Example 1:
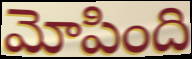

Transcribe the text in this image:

మోపింది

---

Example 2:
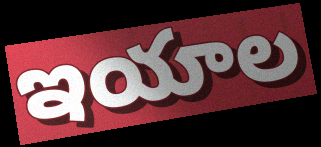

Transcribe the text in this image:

ఇయాల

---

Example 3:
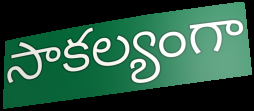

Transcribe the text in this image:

సాకల్యంగా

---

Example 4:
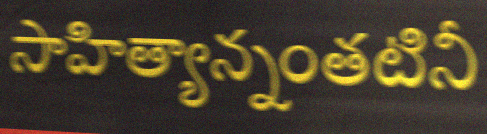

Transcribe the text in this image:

సాహిత్యాన్నంతటినీ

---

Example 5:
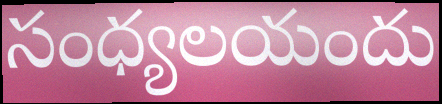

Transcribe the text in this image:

సంధ్యలయందు